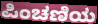
ಪಿಂಚಣಿಯ